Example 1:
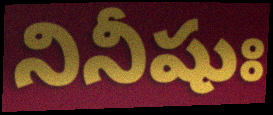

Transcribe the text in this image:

నినీషుః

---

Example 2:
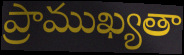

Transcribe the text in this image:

ప్రాముఖ్యతా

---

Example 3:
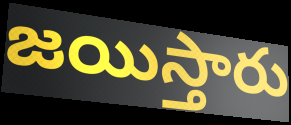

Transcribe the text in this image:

జయిస్తారు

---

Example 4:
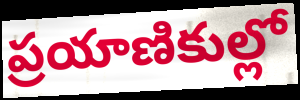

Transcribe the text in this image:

ప్రయాణికుల్లో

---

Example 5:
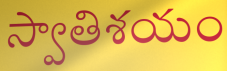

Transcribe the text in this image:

స్వాతిశయం